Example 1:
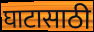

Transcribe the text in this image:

घाटासाठी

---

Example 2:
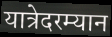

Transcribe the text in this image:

यात्रेदरम्यान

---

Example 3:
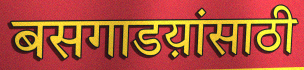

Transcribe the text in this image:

बसगाडय़ांसाठी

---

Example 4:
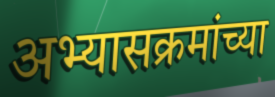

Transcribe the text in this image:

अभ्यासक्रमांच्या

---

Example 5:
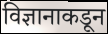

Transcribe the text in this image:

विज्ञानाकडून